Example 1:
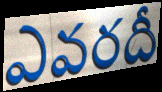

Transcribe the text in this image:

ఎవరదీ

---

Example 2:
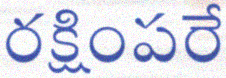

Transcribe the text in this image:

రక్షింపరే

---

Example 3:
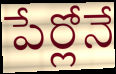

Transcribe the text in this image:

పేర్లోనే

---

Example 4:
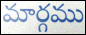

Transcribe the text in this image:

మార్గము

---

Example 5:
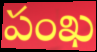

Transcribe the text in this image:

పంఖ